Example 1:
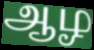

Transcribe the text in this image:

ஆழ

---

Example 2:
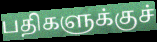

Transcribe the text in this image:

பதிகளுக்குச்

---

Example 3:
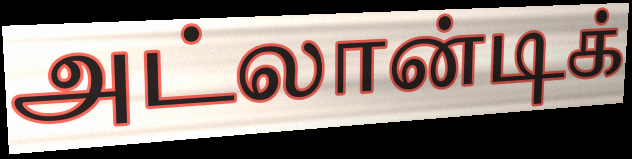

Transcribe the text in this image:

அட்லான்டிக்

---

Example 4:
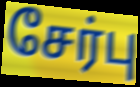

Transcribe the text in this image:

சேர்பு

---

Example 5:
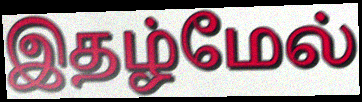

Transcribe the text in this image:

இதழ்மேல்